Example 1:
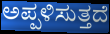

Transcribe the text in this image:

ಅಪ್ಪಳಿಸುತ್ತದೆ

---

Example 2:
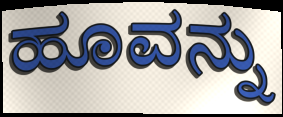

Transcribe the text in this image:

ಹೂವನ್ನು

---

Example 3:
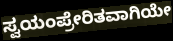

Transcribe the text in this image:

ಸ್ವಯಂಪ್ರೇರಿತವಾಗಿಯೇ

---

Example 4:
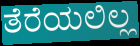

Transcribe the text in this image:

ತೆರೆಯಲಿಲ್ಲ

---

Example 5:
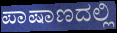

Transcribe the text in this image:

ಪಾಷಾಣದಲ್ಲಿ